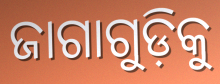
ଜାଗାଗୁଡ଼ିକୁ